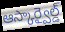
ఆస్కార్వైల్డ్